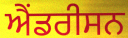
ਐਂਡਰੀਸਨ